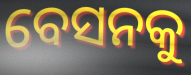
ବେସନକୁ